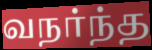
வநர்ந்த